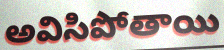
అవిసిపోతాయి